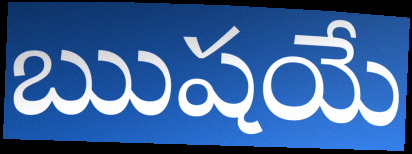
ఋషయే